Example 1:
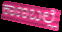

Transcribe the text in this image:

ಕಾಣಬಲ್ಲೆ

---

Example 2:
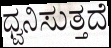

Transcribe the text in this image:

ಧ್ವನಿಸುತ್ತದೆ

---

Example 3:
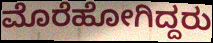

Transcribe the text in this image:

ಮೊರೆಹೋಗಿದ್ದರು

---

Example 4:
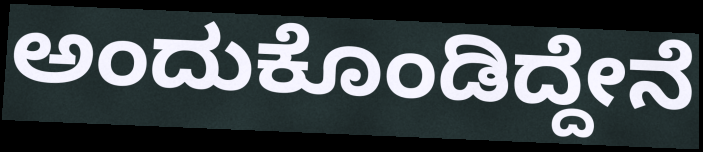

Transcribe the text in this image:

ಅಂದುಕೊಂಡಿದ್ದೇನೆ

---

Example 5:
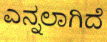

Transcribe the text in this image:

ಎನ್ನಲಾಗಿದೆ